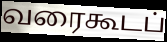
வரைகூடப்